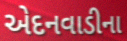
એદનવાડીના